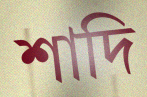
শাদি